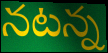
నటన్న